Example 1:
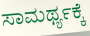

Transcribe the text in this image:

ಸಾಮರ್ಥ್ಯಕ್ಕೆ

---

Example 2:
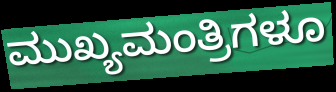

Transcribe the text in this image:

ಮುಖ್ಯಮಂತ್ರಿಗಳೂ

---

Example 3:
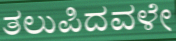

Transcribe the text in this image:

ತಲುಪಿದವಳೇ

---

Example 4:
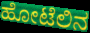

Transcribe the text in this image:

ಹೋಟೆಲಿನ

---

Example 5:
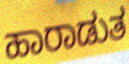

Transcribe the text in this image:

ಹಾರಾಡುತ